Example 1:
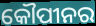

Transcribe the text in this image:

କୌପୀନର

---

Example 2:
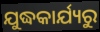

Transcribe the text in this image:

ଯୁଦ୍ଧକାର୍ଯ୍ୟରୁ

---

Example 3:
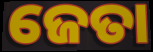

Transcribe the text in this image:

ଜେତା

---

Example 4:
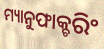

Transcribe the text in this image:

ମ୍ୟାନୁଫାକ୍ଚରିଂ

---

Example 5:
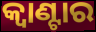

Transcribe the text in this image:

କ୍ୱାଣ୍ଟାର